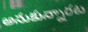
అనుకున్నారట